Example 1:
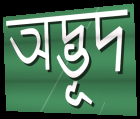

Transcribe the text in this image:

অদ্ভূদ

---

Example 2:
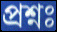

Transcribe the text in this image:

প্ৰশ্নঃ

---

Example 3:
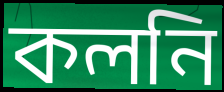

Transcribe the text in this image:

কলনি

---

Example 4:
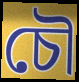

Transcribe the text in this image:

চৌ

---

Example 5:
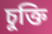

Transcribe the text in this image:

চুক্তি